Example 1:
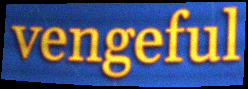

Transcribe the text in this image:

vengeful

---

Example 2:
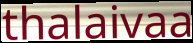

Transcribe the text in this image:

thalaivaa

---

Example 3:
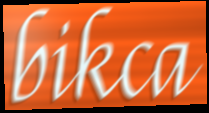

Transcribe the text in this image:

bikca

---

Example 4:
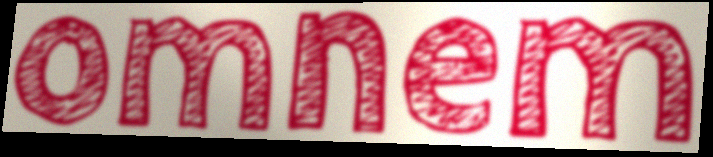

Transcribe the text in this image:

omnem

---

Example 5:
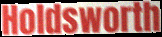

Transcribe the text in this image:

Holdsworth